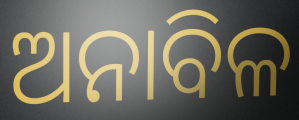
ଅନାବିଳ